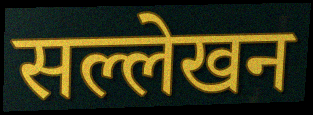
सल्लेखन